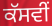
ਕੱਸਵੀਂ